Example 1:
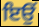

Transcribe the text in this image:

ਇਉਂ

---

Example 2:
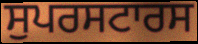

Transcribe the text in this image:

ਸੁਪਰਸਟਾਰਸ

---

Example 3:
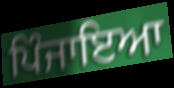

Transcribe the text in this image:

ਪਿੰਜਾਇਆ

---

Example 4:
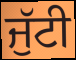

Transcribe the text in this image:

ਜੁੱਟੀ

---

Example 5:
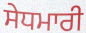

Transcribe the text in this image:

ਸੇਧਮਾਰੀ